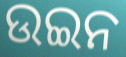
ଉଇନ